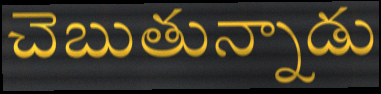
చెబుతున్నాడు